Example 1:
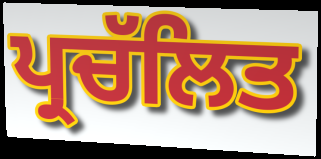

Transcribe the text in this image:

ਪ੍ਰਚੱਲਿਤ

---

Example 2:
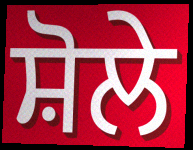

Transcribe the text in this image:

ਸ਼ੋਲੇ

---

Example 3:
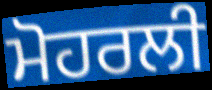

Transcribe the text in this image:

ਮੋਹਰਲੀ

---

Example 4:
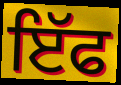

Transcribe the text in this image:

ਇੱਫ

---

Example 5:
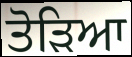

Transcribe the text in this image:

ਤੋਡ਼ਿਆ